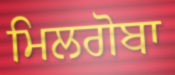
ਮਿਲਗੋਬਾ